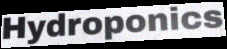
Hydroponics